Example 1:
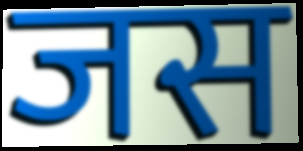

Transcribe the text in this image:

जस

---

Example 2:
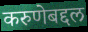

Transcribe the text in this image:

करुणेबद्दल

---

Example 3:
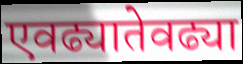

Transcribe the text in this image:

एवढ्यातेवढ्या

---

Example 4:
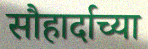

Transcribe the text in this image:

सौहार्दाच्या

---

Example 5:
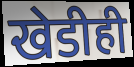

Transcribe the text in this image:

खेडीही